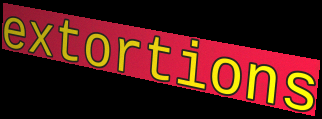
extortions